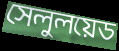
সেলুলয়েড